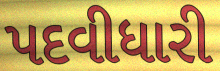
પદવીધારી